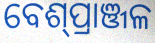
ବେଶ୍‌ପ୍ରାଞ୍ଜଳ